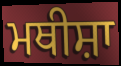
ਮਥੀਸ਼ਾ